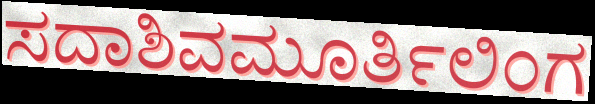
ಸದಾಶಿವಮೂರ್ತಿಲಿಂಗ